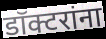
डॉक्टरांना